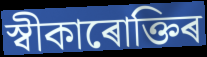
স্বীকাৰোক্তিৰ